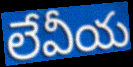
లేవీయ